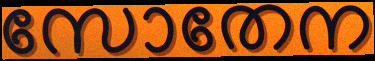
സോതേന